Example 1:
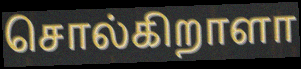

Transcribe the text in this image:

சொல்கிறாளா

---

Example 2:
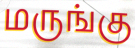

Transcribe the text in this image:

மருங்கு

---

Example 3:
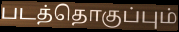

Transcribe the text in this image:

படத்தொகுப்பும்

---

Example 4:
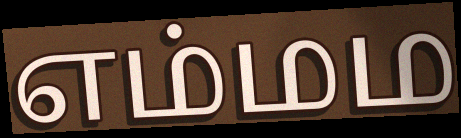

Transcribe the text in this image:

எம்மம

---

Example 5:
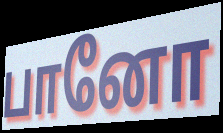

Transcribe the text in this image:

பானோ